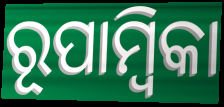
ରୂପାମ୍ବିକା